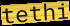
tethi